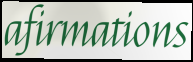
afirmations